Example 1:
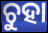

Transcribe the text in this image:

ଚୁହା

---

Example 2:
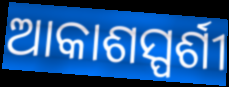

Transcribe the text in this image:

ଆକାଶସ୍ପର୍ଶୀ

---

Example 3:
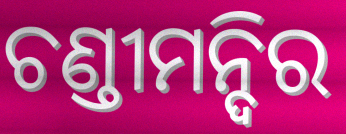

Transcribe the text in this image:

ଚଣ୍ଡୀମନ୍ଦିର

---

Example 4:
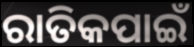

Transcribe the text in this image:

ରାତିକପାଇଁ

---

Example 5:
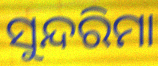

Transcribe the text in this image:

ସୁନ୍ଦରିମା